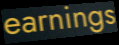
earnings